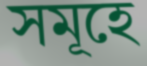
সমূহে